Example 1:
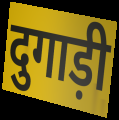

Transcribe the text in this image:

दुगाड़ी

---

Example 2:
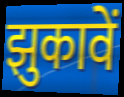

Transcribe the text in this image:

झुकावें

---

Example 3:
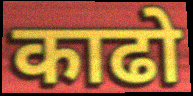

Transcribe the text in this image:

काढो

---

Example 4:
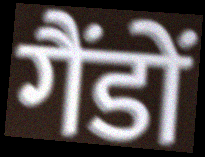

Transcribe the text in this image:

गैंडों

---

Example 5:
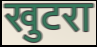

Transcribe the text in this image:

खुटरा